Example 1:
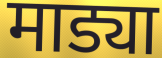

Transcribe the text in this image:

माड्या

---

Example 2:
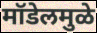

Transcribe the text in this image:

मॉडेलमुळे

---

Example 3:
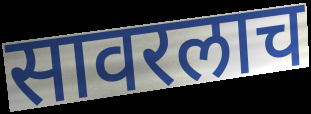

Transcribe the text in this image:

सावरलाच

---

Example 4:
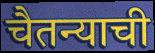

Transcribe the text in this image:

चैतन्याची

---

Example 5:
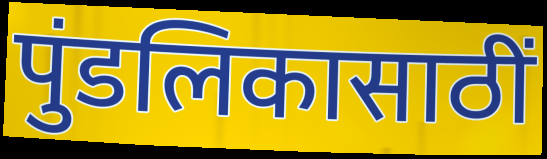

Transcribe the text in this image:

पुंडलिकासाठीं